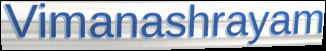
Vimanashrayam